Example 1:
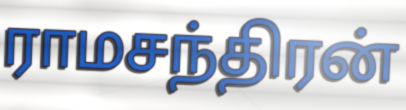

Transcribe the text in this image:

ராமசந்திரன்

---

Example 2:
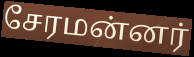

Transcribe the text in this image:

சேரமன்னர்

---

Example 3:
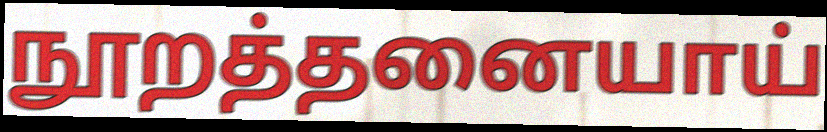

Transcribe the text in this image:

நூறத்தனையாய்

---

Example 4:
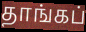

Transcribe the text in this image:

தாங்கப்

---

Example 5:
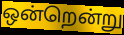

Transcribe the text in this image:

ஒன்றென்று